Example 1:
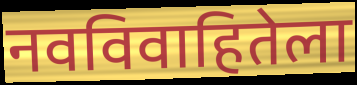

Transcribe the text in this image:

नवविवाहितेला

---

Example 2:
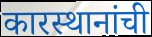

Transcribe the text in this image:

कारस्थानांची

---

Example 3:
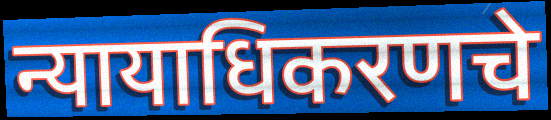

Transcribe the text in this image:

न्यायाधिकरणचे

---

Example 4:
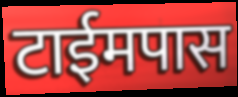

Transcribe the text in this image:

टाईमपास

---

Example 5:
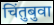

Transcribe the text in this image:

चिंतुबुवा